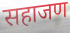
सहाजण